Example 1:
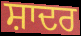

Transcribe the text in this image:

ਸ਼ਾਦਰ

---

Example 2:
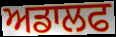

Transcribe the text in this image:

ਅਡਾਲਫ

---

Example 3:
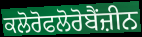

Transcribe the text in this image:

ਕਲੋਰੋਫਲੋਰੋਬੈਂਜ਼ੀਨ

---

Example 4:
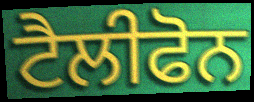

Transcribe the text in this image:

ਟੈਲੀਫੋਨ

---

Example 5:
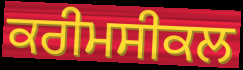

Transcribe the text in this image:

ਕਰੀਮਸੀਕਲ